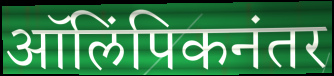
ऑलिंपिकनंतर